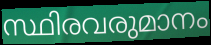
സ്ഥിരവരുമാനം